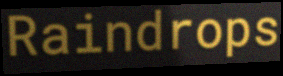
Raindrops